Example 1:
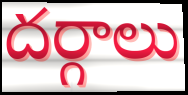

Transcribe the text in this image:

దర్గాలు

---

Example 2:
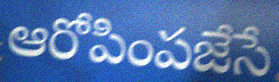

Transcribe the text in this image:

ఆరోపింపజేసే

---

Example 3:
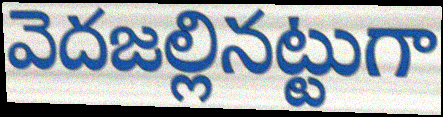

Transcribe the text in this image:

వెదజల్లినట్టుగా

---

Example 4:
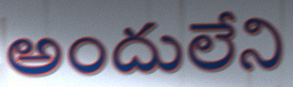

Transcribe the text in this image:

అందులేని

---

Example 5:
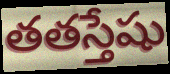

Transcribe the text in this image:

తతస్తేషు